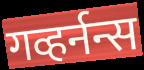
गव्हर्नन्स